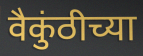
वैकुंठीच्या